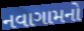
નવાગામનો